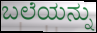
ಬಲೆಯನ್ನು